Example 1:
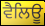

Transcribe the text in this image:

ਵੈਲਿਊ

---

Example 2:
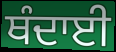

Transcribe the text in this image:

ਥੰਦਾਈ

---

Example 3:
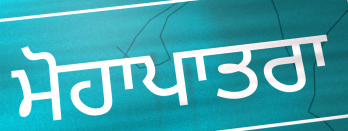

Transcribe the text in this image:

ਮੋਹਾਪਾਤਰਾ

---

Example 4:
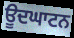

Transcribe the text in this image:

ਊਦਘਾਟਨ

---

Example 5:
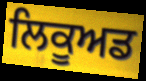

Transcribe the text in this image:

ਲਿਕੂਅਡ